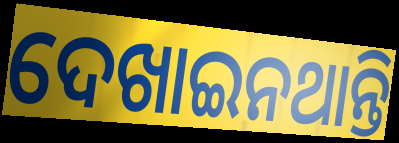
ଦେଖାଇନଥାନ୍ତି